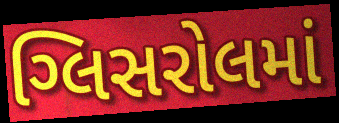
ગ્લિસરોલમાં